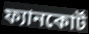
ফ্যানকোর্ট